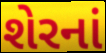
શેરનાં